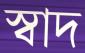
স্বাদ